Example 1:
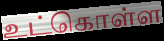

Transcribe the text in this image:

உட்கொள்ள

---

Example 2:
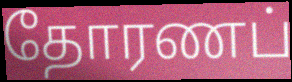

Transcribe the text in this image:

தோரணப்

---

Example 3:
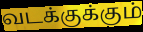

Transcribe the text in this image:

வடக்குக்கும்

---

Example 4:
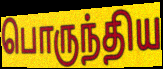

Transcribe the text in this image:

பொருந்திய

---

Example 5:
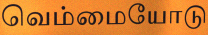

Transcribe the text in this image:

வெம்மையோடு